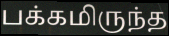
பக்கமிருந்த